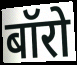
बॉरो